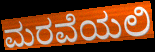
ಮರವೆಯಲಿ